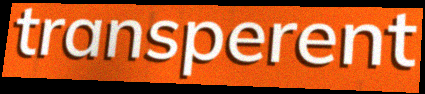
transperent